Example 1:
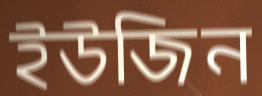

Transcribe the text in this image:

ইউজিন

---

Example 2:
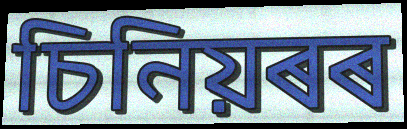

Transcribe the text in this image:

চিনিয়ৰৰ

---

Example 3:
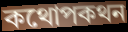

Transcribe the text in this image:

কথোপকথন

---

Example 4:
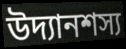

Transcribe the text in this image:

উদ্যানশস্য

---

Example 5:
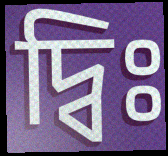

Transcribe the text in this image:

দ্বিঃ